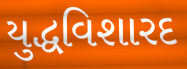
યુદ્ધવિશારદ